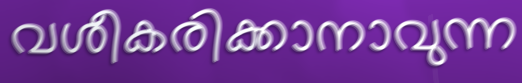
വശീകരിക്കാനാവുന്ന